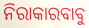
ନିରାକାରବାବୁ